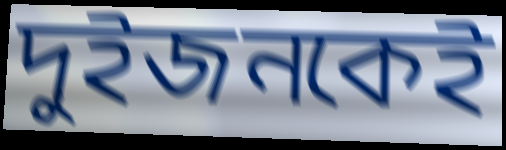
দুইজনকেই